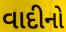
વાદીનો